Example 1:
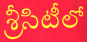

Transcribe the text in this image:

శ్రీసిటీలో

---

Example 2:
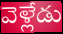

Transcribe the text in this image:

వెళ్లేడు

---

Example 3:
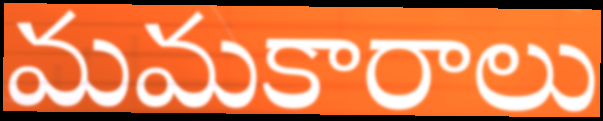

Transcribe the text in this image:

మమకారాలు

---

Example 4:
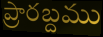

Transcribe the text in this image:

ప్రారబ్దము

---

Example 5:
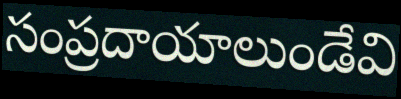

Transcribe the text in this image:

సంప్రదాయాలుండేవి